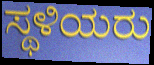
ಸ್ಥಳಿಯರು